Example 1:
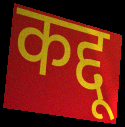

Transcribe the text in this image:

कद्दू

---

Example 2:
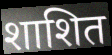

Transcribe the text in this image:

शाशित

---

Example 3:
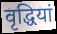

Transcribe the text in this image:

वृद्धियां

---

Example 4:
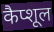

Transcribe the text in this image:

कैप्शूल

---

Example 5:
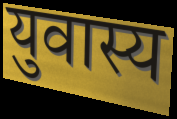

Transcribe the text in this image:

युवास्य